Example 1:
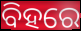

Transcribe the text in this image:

ବିହରେ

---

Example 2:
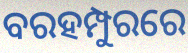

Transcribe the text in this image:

ବରହମ୍ପୁରରେ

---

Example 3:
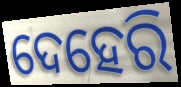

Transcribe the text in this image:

ଦେହେରି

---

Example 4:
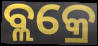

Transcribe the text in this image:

ବ୍ଲକ୍ରେ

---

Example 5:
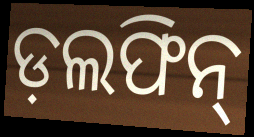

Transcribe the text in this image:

ଡ଼ଲଫିନ୍